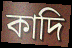
কাদি